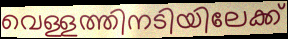
വെള്ളത്തിനടിയിലേക്ക്